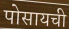
पोसायची